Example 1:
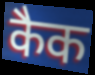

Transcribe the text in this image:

कैक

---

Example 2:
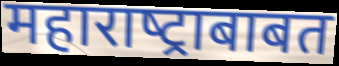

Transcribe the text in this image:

महाराष्ट्राबाबत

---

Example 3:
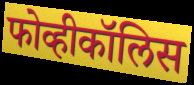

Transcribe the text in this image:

फोव्हीकॉलिस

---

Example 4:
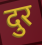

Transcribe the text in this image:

दुर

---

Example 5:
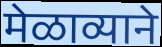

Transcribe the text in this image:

मेळाव्याने